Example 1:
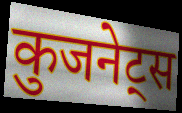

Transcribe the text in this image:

कुजनेट्स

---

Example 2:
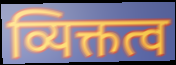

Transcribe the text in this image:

व्यिक्तत्व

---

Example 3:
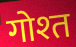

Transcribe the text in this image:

गोश्‍त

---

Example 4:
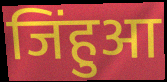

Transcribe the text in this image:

जिंहुआ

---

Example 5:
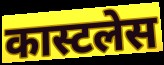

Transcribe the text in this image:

कास्टलेस